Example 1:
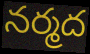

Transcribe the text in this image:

నర్మద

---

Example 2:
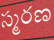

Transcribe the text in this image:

స్మరణ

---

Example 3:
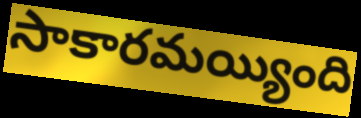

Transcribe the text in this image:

సాకారమయ్యింది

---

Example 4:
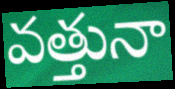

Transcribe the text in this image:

వత్తునా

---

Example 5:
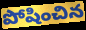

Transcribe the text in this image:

పోషించిన